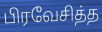
பிரவேசித்த